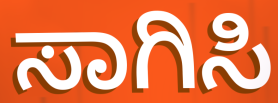
ಸಾಗಿಸಿ